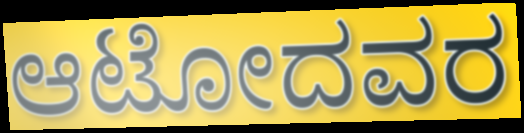
ಆಟೋದವರ